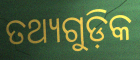
ତଥ୍ୟଗୁଡ଼ିକ